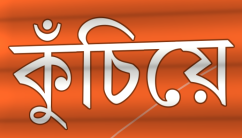
কুঁচিয়ে